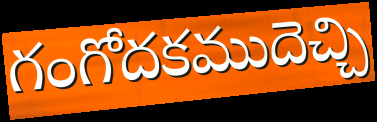
గంగోదకముదెచ్చి